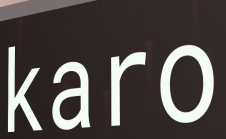
karo